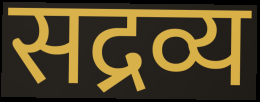
सद्रव्य